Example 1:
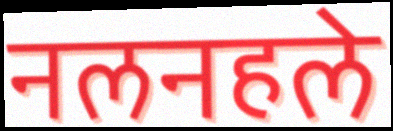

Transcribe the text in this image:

नलनहले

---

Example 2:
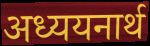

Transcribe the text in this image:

अध्ययनार्थ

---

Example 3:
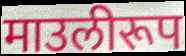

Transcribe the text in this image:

माउलीरूप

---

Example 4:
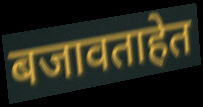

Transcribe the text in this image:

बजावताहेत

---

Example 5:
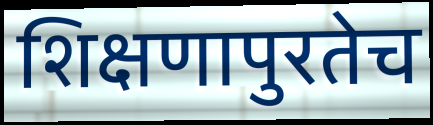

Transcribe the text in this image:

शिक्षणापुरतेच